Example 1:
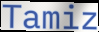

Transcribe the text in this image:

Tamiz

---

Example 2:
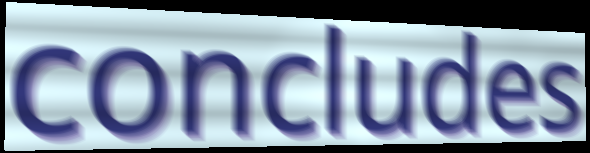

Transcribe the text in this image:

concludes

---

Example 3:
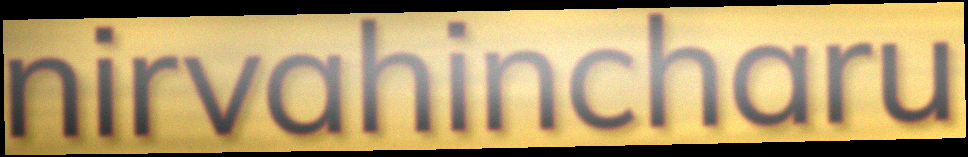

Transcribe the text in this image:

nirvahincharu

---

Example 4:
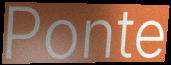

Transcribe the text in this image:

Ponte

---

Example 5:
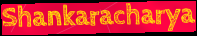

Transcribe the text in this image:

Shankaracharya